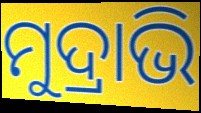
ମୁଦ୍ରାଭି